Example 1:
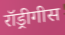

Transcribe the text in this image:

रॉड्रीगीस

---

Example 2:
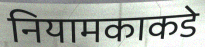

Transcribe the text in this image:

नियामकाकडे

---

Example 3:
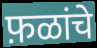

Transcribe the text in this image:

फ़ळांचे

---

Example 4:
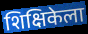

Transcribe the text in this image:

शिक्षिकेला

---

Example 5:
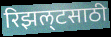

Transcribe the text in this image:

रिझल्टसाठी